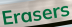
Erasers